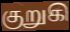
குறுகி